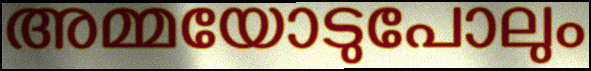
അമ്മയോടുപോലും